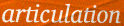
articulation